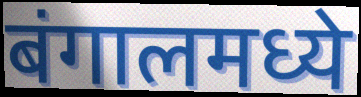
बंगालमध्ये